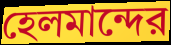
হেলমান্দের